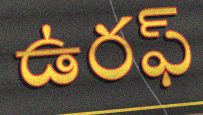
ఉరఫ్